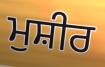
ਮੁਸ਼ੀਰ